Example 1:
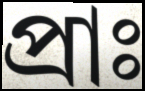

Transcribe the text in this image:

প্রাঃ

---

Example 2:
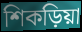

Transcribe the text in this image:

শিকড়িয়া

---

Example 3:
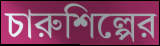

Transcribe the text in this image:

চারুশিল্পের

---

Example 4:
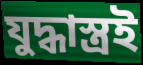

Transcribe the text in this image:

যুদ্ধাস্ত্রই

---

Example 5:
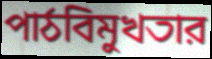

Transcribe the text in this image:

পাঠবিমুখতার